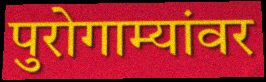
पुरोगाम्यांवर